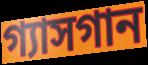
গ্যাসগান